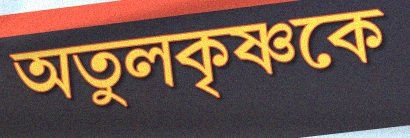
অতুলকৃষ্ণকে